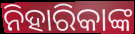
ନିହାରିକାଙ୍କ